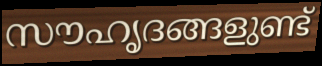
സൗഹൃദങ്ങളുണ്ട്